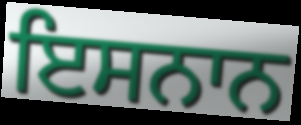
ਇਸਨਾਨ